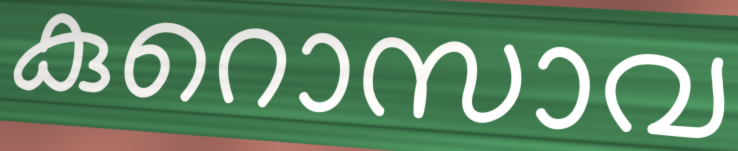
കുറൊസാവ